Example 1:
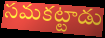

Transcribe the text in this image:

సమకట్టాడు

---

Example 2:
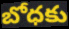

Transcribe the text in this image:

బోధకు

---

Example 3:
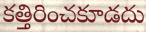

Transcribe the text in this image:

కత్తిరించకూడదు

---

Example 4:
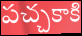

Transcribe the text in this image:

పచ్చకాకి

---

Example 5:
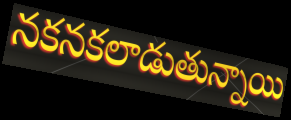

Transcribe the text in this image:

నకనకలాడుతున్నాయి